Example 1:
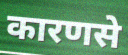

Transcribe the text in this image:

कारणसे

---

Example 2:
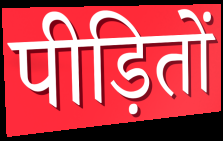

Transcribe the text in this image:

पीड़ितों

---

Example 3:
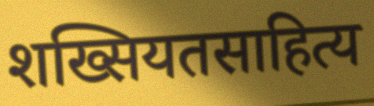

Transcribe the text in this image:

शख्सियतसाहित्य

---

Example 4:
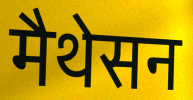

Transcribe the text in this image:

मैथेसन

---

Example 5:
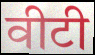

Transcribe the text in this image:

वीटी